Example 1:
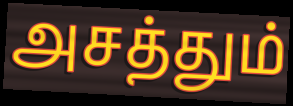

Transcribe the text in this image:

அசத்தும்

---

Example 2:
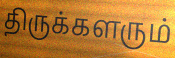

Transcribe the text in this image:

திருக்களரும்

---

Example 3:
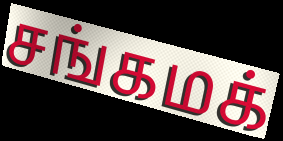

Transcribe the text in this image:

சங்கமக்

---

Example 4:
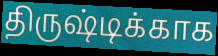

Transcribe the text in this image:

திருஷ்டிக்காக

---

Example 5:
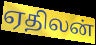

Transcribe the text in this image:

ஏதிலன்